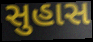
સુહાસ